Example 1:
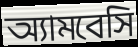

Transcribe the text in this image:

অ্যামবেসি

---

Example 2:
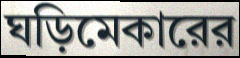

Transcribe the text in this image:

ঘড়িমেকারের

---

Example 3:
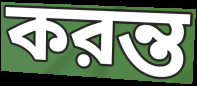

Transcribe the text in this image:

করন্ত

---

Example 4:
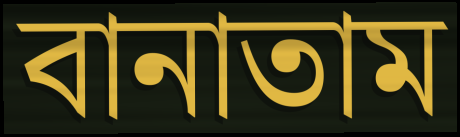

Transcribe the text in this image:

বানাতাম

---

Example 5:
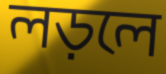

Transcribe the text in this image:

লড়লে